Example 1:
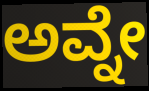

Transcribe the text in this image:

ಅವ್ನೇ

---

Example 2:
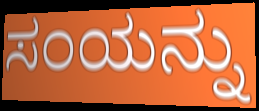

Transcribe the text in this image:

ಸಂಯನ್ನು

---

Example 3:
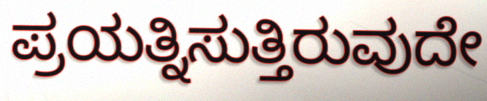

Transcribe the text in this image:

ಪ್ರಯತ್ನಿಸುತ್ತಿರುವುದೇ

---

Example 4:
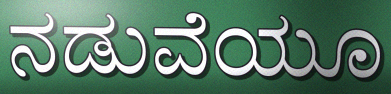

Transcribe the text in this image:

ನಡುವೆಯೂ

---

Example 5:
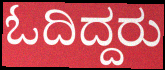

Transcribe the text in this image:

ಓದಿದ್ದರು